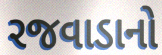
રજવાડાનો